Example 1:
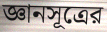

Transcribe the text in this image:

জ্ঞানসূত্রের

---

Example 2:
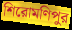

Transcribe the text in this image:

শিরোমণিপুর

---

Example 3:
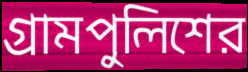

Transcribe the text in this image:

গ্রামপুলিশের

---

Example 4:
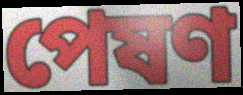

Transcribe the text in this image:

পেষণ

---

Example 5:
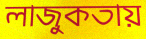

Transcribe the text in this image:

লাজুকতায়